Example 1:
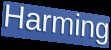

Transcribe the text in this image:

Harming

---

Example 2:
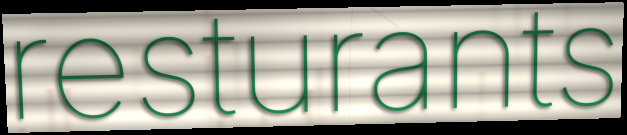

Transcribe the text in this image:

resturants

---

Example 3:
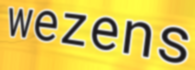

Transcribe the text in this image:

wezens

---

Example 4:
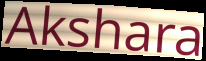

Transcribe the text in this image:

Akshara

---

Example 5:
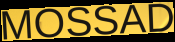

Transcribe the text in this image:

MOSSAD